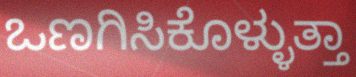
ಒಣಗಿಸಿಕೊಳ್ಳುತ್ತಾ